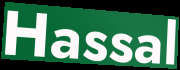
Hassal